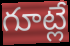
గూట్లే